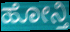
ಹೋನ್ತಿ